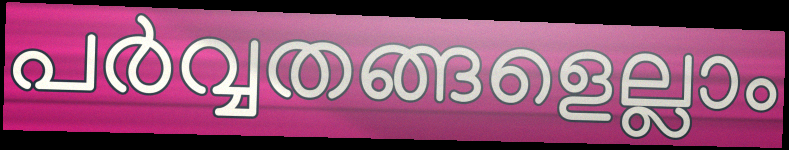
പർവ്വതങ്ങളെല്ലാം